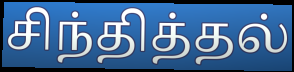
சிந்தித்தல்